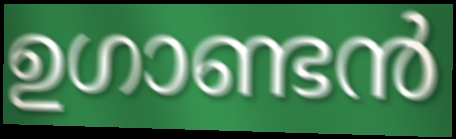
ഉഗാണ്ടൻ